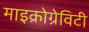
माइक्रोग्रेविटी